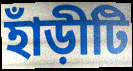
হাঁড়ীটি